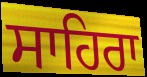
ਸਾਹਿਰਾ